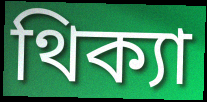
থিক্যা